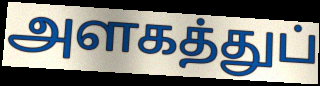
அளகத்துப்